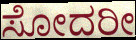
ಸೋದರೀ